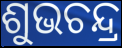
ଶୁଭଚନ୍ଦ୍ର